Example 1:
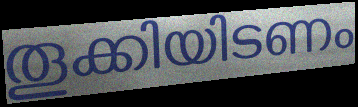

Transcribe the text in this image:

തൂക്കിയിടണം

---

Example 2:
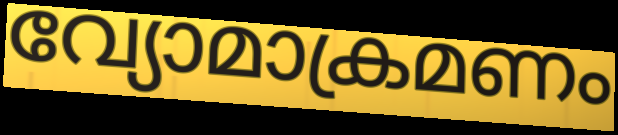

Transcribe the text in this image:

വ്യോമാക്രമണം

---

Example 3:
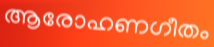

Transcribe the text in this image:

ആരോഹണഗീതം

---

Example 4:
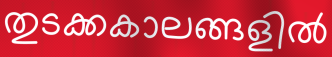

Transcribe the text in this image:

തുടക്കകാലങ്ങളിൽ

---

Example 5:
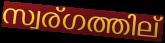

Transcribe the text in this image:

സ്വര്ഗത്തില്